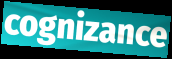
cognizance